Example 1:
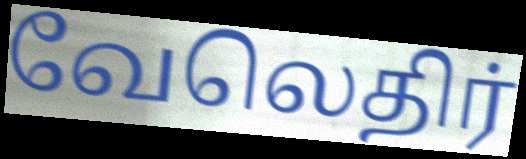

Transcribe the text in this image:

வேலெதிர்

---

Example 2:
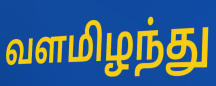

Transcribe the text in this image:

வளமிழந்து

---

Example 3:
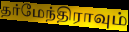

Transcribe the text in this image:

தர்மேந்திராவும்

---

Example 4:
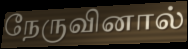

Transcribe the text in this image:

நேருவினால்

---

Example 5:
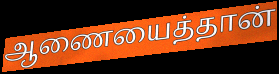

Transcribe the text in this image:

ஆணையைத்தான்